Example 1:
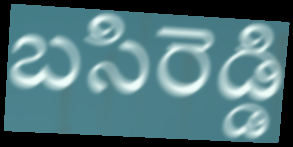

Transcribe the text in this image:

బసిరెడ్డి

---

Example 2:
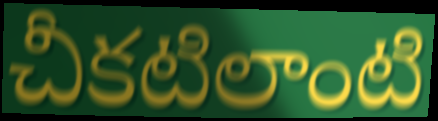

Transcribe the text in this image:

చీకటిలాంటి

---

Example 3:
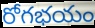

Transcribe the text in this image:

రోగభయం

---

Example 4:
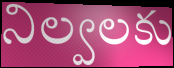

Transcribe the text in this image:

నిల్వలకు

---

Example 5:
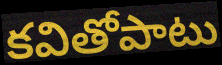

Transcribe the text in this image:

కవితోపాటు